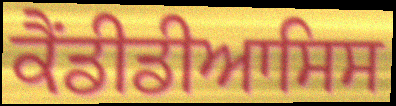
ਕੈਂਡੀਡੀਆਸਿਸ